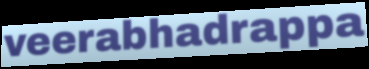
veerabhadrappa